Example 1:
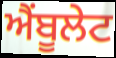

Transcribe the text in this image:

ਐਂਬੂਲੇਟ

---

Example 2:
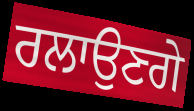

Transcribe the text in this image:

ਰਲਾਉਣਗੇ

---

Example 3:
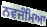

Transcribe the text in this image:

ਨਵਜੰਮਿਆ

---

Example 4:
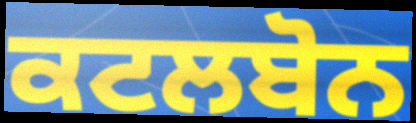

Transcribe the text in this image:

ਕਟਲਬੋਨ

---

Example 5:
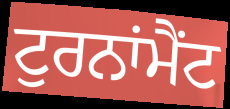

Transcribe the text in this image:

ਟੁਰਨਾਂਮੈਂਟ